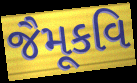
જૈમૂકવિ